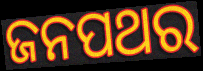
ଜନପଥର